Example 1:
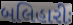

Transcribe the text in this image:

બલિહારીઃ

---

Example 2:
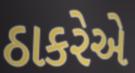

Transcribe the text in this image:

ઠાકરેએ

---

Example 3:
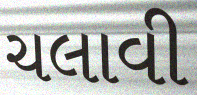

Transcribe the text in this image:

ચલાવી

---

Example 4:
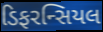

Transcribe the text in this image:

ડિફરન્સિયલ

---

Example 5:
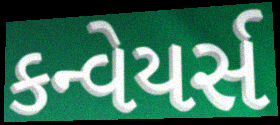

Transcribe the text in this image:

કન્વેયર્સ